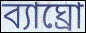
ব্যাঘ্রো